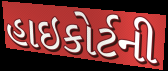
હાઇકોર્ટની